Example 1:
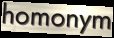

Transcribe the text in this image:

homonym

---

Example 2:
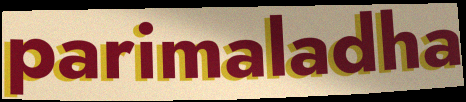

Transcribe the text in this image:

parimaladha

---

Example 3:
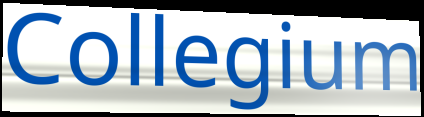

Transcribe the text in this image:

Collegium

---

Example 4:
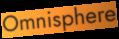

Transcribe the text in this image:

Omnisphere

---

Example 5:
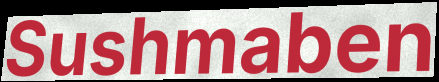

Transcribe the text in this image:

Sushmaben